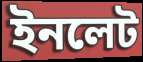
ইনলেট